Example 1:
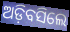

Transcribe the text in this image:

ଅଡ଼ିବସିଲେ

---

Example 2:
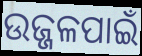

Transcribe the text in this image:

ଉଜ୍ଜଳପାଇଁ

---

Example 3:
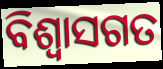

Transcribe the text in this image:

ବିଶ୍ଵାସଗତ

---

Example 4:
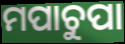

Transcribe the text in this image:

ମପାଚୁପା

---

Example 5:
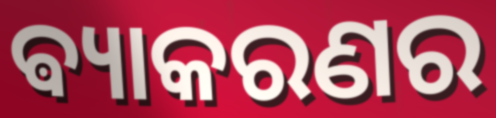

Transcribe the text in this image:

ଵ୍ୟାକରଣର